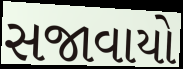
સજાવાયો